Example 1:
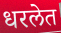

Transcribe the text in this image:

धरलेत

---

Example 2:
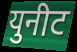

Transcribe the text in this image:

युनीट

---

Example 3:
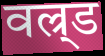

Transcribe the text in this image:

वल्र्ड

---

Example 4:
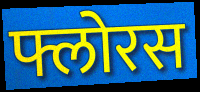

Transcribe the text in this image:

फ्लोरस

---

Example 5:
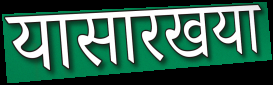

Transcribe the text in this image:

यासारखया